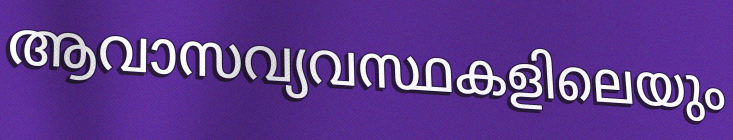
ആവാസവ്യവസ്ഥകളിലെയും